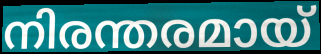
നിരന്തരമായ്